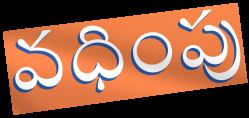
వధింపు